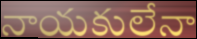
నాయకులేనా